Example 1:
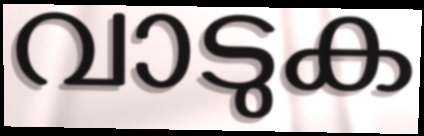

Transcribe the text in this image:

വാടുക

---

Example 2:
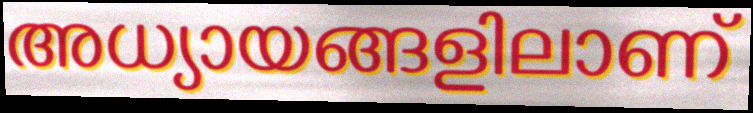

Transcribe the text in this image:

അധ്യായങ്ങളിലാണ്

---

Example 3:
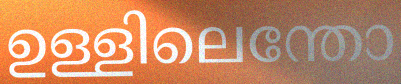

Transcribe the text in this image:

ഉള്ളിലെന്തോ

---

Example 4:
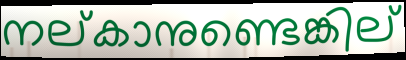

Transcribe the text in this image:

നല്കാനുണ്ടെങ്കില്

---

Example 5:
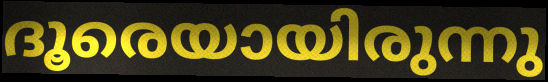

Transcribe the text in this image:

ദൂരെയായിരുന്നു